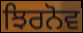
ਝਿਰਨੋਵ